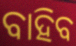
ବାହିବ